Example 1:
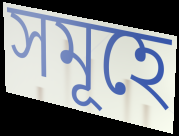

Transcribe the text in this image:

সমূহে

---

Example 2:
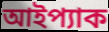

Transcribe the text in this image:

আইপ্যাক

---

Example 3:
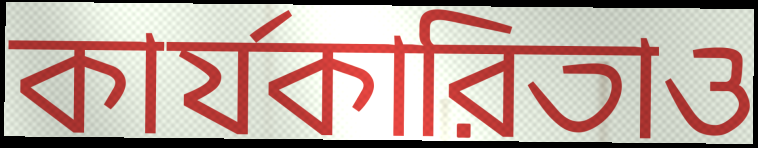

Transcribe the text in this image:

কার্যকারিতাও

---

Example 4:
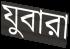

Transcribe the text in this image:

যুবারা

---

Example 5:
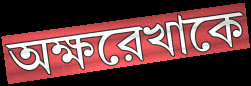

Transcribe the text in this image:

অক্ষরেখাকে